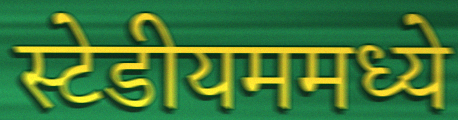
स्टेडीयममध्ये